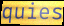
quies